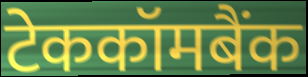
टेककॉमबैंक